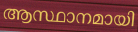
ആസ്ഥാനമായി